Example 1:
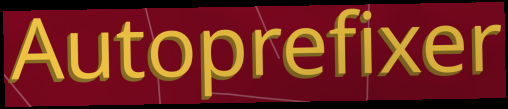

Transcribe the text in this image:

Autoprefixer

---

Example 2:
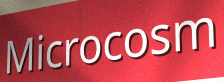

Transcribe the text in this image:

Microcosm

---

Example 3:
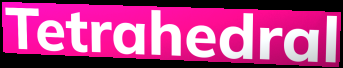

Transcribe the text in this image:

Tetrahedral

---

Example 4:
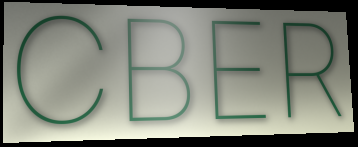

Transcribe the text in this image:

CBER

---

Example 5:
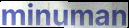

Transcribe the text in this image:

minuman